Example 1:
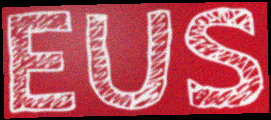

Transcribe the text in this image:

EUS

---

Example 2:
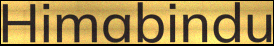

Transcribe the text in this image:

Himabindu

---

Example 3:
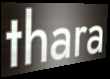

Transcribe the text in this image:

thara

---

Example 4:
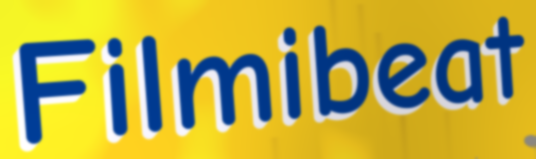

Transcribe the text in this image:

Filmibeat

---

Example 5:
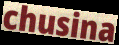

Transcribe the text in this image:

chusina